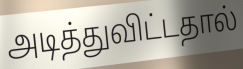
அடித்துவிட்டதால்